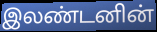
இலண்டனின்